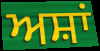
ਅਸ਼ਾਂ